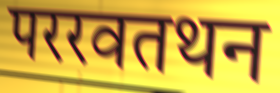
पररवतथन